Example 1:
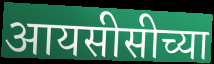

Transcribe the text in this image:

आयसीसीच्या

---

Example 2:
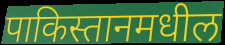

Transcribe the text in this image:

पाकिस्तानमधील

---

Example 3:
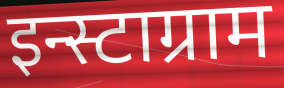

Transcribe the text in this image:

इन्स्टाग्राम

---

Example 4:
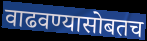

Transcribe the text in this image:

वाढवण्यासोबतच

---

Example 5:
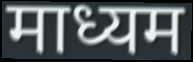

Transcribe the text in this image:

माध्यम